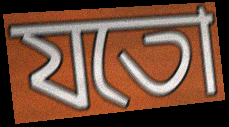
যতো